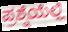
ಪ್ರಶ್ನೆಯೆಲ್ಲಿ